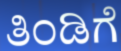
ತಿಂಡಿಗೆ